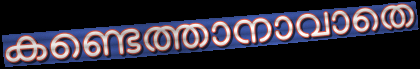
കണ്ടെത്താനാവാതെ